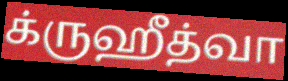
க்ருஹீத்வா